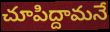
చూపిద్దామనే